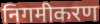
निगमीकरण